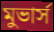
মুভার্স